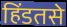
हिंडतसे